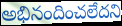
అభినందించలేదని